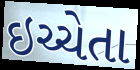
ઇચ્ચેતા